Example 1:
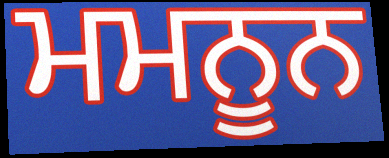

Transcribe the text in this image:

ਮਮਨੂਨ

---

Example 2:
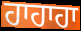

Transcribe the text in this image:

ਹਾਹਾਹਾ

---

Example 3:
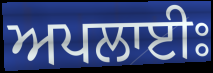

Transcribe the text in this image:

ਅਪਲਾਈਃ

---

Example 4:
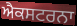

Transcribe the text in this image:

ਐਕਸਟਰਨਾ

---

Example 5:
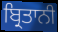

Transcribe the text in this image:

ਬ੍ਰਿਤਾਨੀ